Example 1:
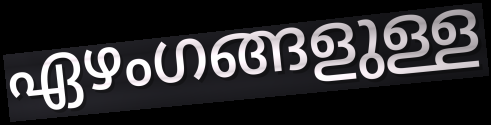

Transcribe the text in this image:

ഏഴംഗങ്ങളുള്ള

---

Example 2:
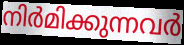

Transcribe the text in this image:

നിർമിക്കുന്നവർ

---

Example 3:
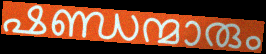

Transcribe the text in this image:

ഷണ്ഡന്മാരും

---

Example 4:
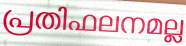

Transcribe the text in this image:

പ്രതിഫലനമല്ല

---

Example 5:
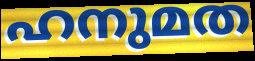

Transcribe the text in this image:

ഹനുമത